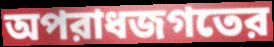
অপরাধজগতের